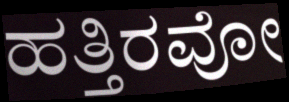
ಹತ್ತಿರವೋ